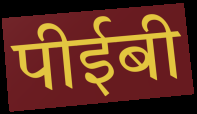
पीईबी